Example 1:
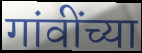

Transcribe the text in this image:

गांवींच्या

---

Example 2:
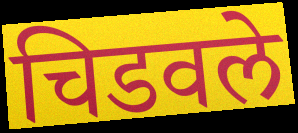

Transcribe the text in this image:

चिडवले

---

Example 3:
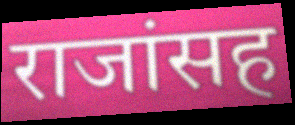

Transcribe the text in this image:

राजांसह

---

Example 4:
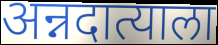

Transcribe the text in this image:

अन्नदात्याला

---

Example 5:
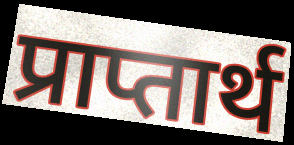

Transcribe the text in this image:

प्राप्तार्थ